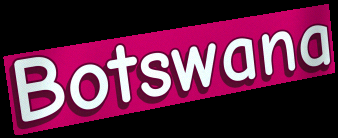
Botswana